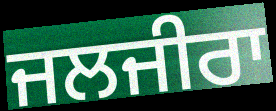
ਜਲਜੀਰਾ